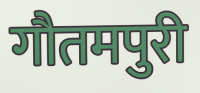
गौतमपुरी